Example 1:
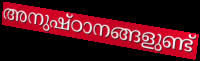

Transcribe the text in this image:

അനുഷ്ഠാനങ്ങളുണ്ട്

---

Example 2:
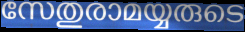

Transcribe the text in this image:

സേതുരാമയ്യരുടെ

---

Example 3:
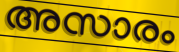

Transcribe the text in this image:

അസാരം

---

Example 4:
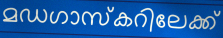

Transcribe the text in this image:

മഡഗാസ്കറിലേക്ക്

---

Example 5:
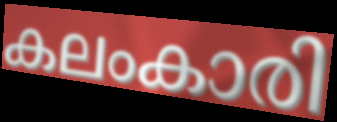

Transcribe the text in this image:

കലംകാരി